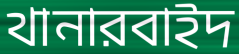
থানারবাইদ